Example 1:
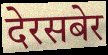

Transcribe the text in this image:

देरसबेर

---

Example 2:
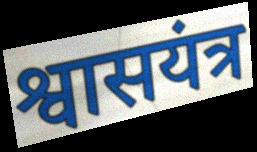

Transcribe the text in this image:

श्वासयंत्र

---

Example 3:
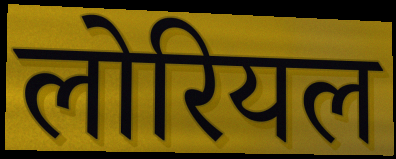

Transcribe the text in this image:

लोरियल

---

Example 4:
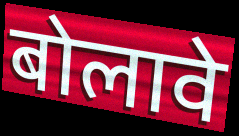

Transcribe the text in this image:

बोलावे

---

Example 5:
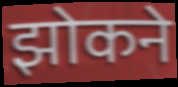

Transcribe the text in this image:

झोकने